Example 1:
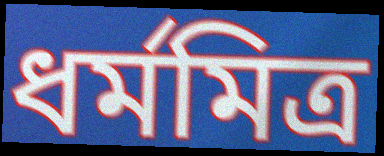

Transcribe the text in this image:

ধর্মমিত্র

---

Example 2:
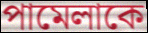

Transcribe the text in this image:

পামেলাকে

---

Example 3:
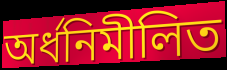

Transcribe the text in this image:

অর্ধনিমীলিত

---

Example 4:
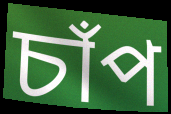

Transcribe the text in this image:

চাঁপ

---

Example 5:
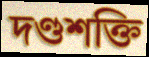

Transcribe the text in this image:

দণ্ডশক্তি